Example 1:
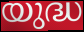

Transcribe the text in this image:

യുദ്ധ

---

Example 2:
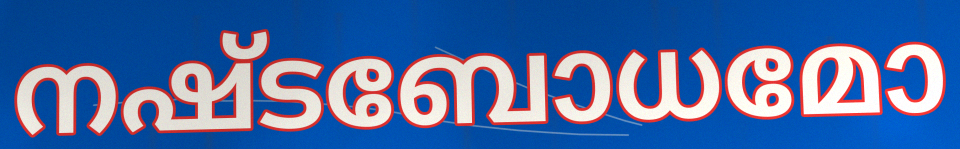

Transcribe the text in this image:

നഷ്ടബോധമോ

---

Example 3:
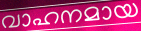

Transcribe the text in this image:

വാഹനമായ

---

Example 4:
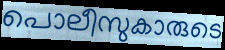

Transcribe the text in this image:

പൊലീസുകാരുടെ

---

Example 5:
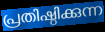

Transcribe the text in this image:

പ്രതിഷ്ഠിക്കുന്ന